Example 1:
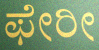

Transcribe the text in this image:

ಫೇರೀ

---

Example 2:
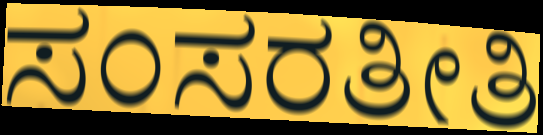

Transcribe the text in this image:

ಸಂಸರತೀತಿ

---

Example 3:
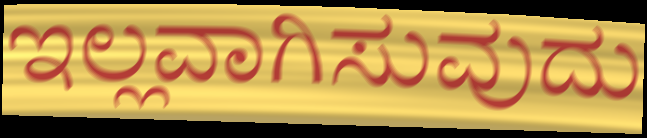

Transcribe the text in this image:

ಇಲ್ಲವಾಗಿಸುವುದು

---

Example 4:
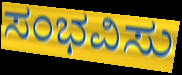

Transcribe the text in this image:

ಸಂಭವಿಸು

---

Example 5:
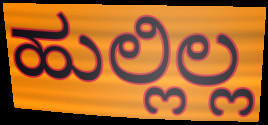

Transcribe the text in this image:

ಹುಲ್ಲಿಲ್ಲ